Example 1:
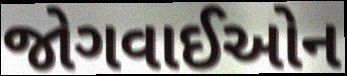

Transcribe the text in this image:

જોગવાઈઓન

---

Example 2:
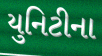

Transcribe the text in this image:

યુનિટીના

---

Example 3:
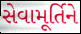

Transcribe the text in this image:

સેવામૂર્તિને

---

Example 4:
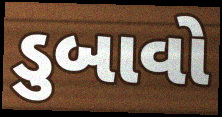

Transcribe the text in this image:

ડુબાવો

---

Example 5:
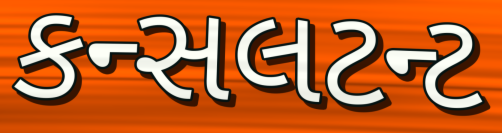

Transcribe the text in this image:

કન્સલટન્ટ